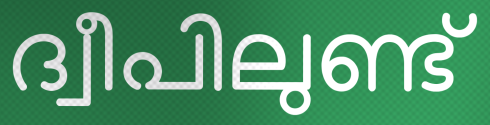
ദ്വീപിലുണ്ട്